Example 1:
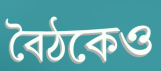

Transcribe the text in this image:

বৈঠকেও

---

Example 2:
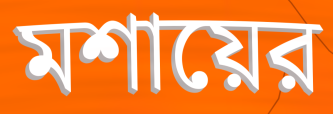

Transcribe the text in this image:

মশায়ের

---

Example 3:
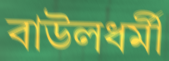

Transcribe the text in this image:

বাউলধর্মী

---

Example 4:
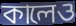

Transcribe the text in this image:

কালেও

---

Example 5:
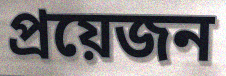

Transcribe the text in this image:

প্রয়েজন